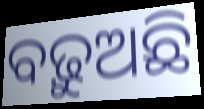
ବଢ଼ୁଅଛି